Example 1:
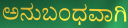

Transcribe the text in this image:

ಅನುಬಂಧವಾಗಿ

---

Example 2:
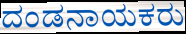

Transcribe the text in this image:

ದಂಡನಾಯಕರು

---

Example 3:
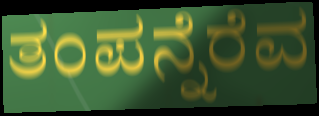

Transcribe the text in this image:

ತಂಪನ್ನೆರೆವ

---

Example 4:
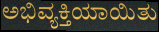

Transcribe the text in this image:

ಅಭಿವ್ಯಕ್ತಿಯಾಯಿತು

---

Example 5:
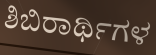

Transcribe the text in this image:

ಶಿಬಿರಾರ್ಥಿಗಳ